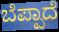
ಬೆಪ್ಪಾದೆ